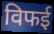
विफई